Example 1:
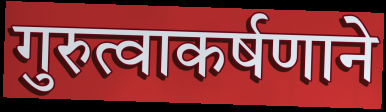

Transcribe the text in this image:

गुरुत्वाकर्षणाने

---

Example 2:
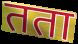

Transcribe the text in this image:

तता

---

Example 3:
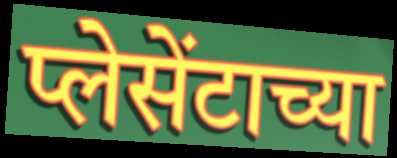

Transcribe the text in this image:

प्लेसेंटाच्या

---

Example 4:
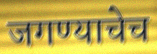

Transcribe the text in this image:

जगण्याचेच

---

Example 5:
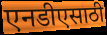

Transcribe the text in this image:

एनडीएसाठी